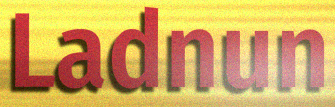
Ladnun